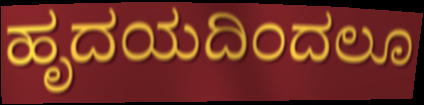
ಹೃದಯದಿಂದಲೂ